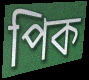
পিক